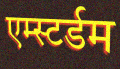
एम्स्टर्डम